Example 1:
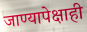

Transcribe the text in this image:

जाण्यापेक्षाही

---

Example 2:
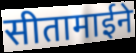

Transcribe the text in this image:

सीतामाईने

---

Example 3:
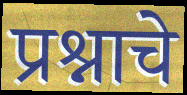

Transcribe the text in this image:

प्रश्नाचे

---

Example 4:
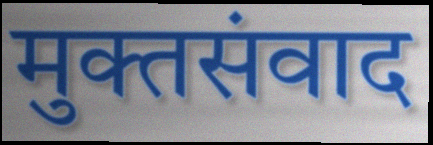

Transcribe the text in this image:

मुक्तसंवाद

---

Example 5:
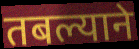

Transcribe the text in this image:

तबल्याने